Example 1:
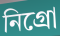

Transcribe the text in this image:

নিগ্ৰো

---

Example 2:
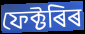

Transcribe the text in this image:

ফেক্টৰিৰ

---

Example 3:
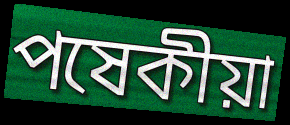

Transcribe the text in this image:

পষেকীয়া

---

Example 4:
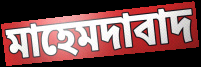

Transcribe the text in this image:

মাহেমদাবাদ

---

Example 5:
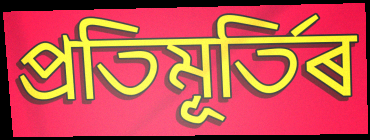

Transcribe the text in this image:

প্ৰতিমূৰ্তিৰ